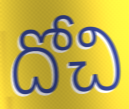
దోచి